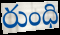
రుంధి